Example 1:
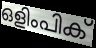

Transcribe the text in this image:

ഒളിംപിക്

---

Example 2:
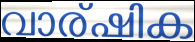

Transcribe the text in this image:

വാര്ഷിക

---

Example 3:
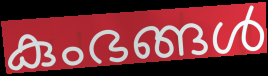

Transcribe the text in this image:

കുംഭങ്ങൾ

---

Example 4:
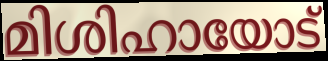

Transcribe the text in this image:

മിശിഹായോട്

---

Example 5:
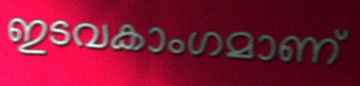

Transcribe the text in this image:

ഇടവകാംഗമാണ്